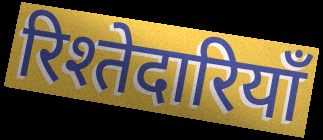
रिश्तेदारियाँ